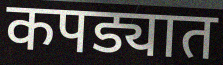
कपड्यात